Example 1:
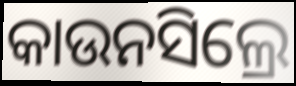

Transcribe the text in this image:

କାଉନସିଲ୍ରେ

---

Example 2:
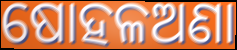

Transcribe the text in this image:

ଷୋହଳଅଣା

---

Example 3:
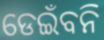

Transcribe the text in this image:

ଡେଇଁବନି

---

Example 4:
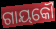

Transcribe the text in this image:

ଗାୟକୌ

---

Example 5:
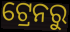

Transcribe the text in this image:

ଟ୍ରେନରୁ